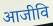
आजीवि